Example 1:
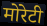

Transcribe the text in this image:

मोरेटी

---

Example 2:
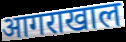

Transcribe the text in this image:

आगराखाल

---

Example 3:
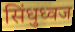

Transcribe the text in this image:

सिंधुध्वज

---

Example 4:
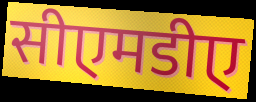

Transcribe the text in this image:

सीएमडीए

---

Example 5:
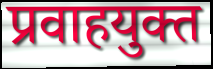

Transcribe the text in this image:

प्रवाहयुक्त